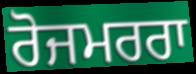
ਰੋਜਮਰਰਾ